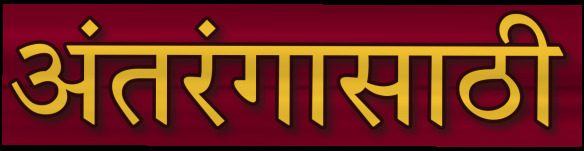
अंतरंगासाठी